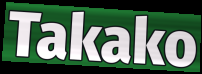
Takako